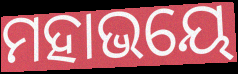
ମହାଭୟେ